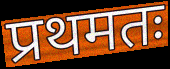
प्रथमतः